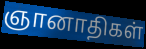
ஞானாதிகள்